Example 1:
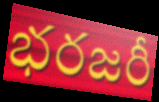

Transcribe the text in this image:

భరజరీ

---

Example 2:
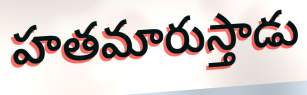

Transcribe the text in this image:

హతమారుస్తాడు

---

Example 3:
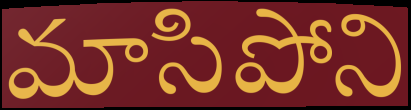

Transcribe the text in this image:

మాసిపోని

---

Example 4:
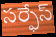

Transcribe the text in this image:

సర్ఫేస్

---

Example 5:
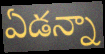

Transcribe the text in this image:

ఏడన్నా